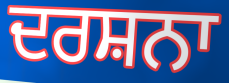
ਦਰਸ਼ਨਾ